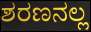
ಶರಣನಲ್ಲ